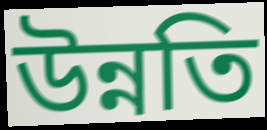
উন্নতি